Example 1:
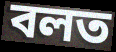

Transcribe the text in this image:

বলত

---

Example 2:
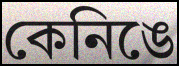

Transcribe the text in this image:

কেনিঙে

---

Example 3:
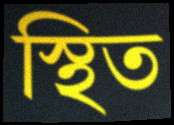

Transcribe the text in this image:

স্থিত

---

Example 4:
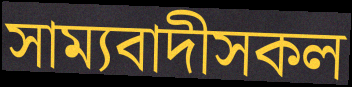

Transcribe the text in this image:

সাম্যবাদীসকল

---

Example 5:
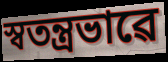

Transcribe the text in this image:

স্বতন্ত্ৰভাৱে